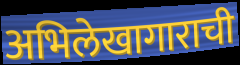
अभिलेखागाराची